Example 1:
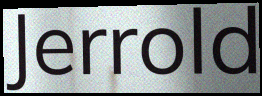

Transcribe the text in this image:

Jerrold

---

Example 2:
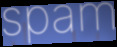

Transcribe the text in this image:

spam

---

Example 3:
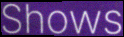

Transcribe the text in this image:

Shows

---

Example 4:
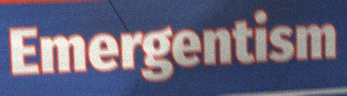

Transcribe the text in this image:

Emergentism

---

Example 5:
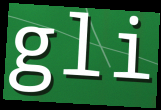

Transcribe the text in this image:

gli